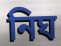
নিঘ